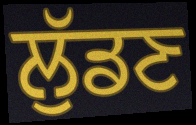
ਲੁੱਡਣ